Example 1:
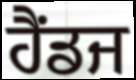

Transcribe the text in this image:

ਹੈਂਡਜ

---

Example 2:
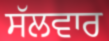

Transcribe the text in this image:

ਸੱਲਵਾਰ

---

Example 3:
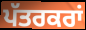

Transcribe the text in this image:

ਪੱਤਰਕਰਾਂ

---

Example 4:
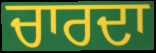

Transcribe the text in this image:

ਚਾਰਦਾ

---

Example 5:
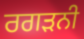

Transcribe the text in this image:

ਰਗੜਨੀ